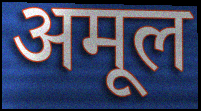
अमूल